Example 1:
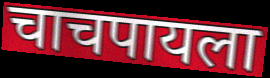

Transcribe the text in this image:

चाचपायला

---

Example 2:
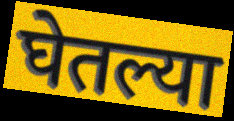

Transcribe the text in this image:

घेतल्या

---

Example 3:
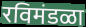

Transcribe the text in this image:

रविमंडळा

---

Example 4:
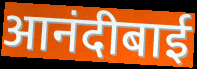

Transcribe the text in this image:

आनंदीबाई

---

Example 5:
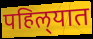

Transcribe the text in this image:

पहिल्यात